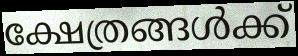
ക്ഷേത്രങ്ങൾക്ക്